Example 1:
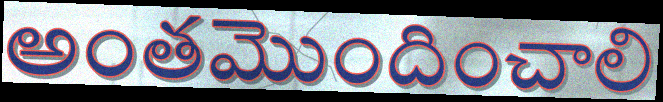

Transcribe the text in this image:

అంతమొందించాలి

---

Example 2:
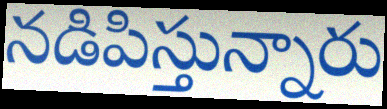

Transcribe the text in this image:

నడిపిస్తున్నారు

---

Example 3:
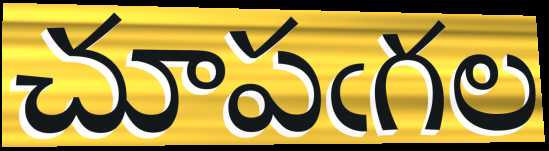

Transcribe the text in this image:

చూపఁగల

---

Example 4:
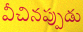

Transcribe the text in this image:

వీచినప్పుడు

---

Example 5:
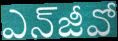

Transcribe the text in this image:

ఎన్‌జీవో